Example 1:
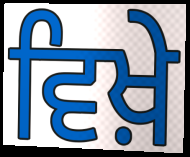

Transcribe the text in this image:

ਵਿਖ਼ੇ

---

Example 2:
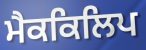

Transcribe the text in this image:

ਮੈਕਕਿਲਿਪ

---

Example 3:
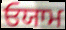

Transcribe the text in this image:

ਓਯਾਮ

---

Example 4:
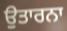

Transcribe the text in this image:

ਉਤਾਰਨਾ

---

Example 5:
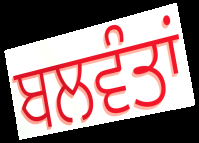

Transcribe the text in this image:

ਬਲਵੰਤਾਂ